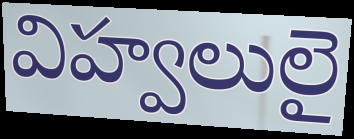
విహ్వలులై